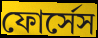
ফোর্সেস